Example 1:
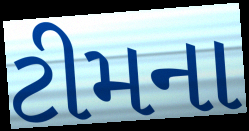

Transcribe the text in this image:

ટીમના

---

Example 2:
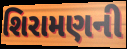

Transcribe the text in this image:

શિરામણની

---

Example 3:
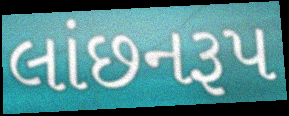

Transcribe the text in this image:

લાંછનરૂપ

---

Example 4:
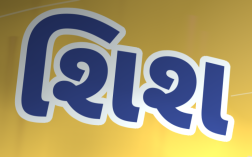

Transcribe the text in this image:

શિશ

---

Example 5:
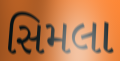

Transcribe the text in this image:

સિમલા